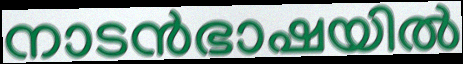
നാടൻഭാഷയിൽ